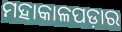
ମହାକାଳପଡ଼ାର